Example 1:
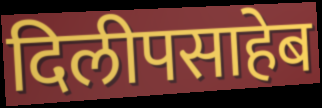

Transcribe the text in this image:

दिलीपसाहेब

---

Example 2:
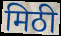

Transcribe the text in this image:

मिठी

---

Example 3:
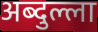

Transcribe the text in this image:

अब्दुल्ला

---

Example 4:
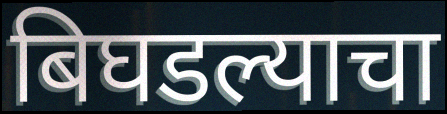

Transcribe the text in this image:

बिघडल्याचा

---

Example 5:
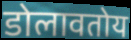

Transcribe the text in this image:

डोलावतोय